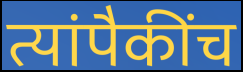
त्यांपैकींच